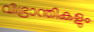
വിഭ്രാന്തികളും